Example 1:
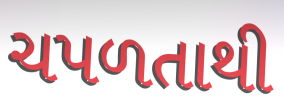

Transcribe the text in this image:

ચપળતાથી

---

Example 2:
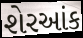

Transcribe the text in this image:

શેરઆંક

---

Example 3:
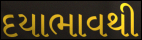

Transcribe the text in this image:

દયાભાવથી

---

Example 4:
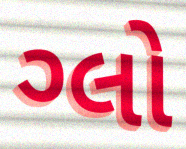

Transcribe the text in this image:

ગ્લો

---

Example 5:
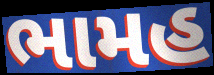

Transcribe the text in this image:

ભામહ